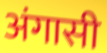
अंगासी